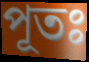
পূতঃ